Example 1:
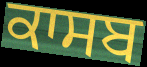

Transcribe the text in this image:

ਕਾਸਬ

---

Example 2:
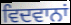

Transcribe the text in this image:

ਵਿਦਵਾਨਾਂ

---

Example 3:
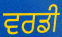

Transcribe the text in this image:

ਵਰਡੀ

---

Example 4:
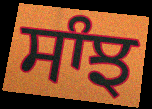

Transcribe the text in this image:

ਸਾੰਝ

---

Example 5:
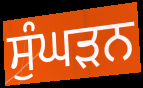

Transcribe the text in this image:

ਸੁੰਘੜਨ